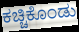
ಕಚ್ಚಿಕೊಂಡು